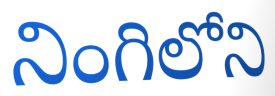
నింగిలోని